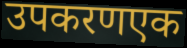
उपकरणएक